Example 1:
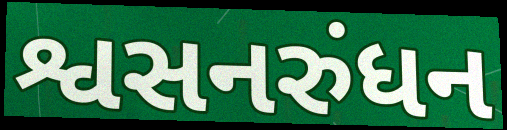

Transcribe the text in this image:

શ્વસનરુંધન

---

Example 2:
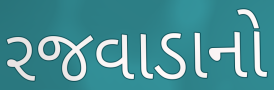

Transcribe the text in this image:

રજવાડાનો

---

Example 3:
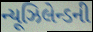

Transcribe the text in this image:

ન્યૂઝિલેન્ડની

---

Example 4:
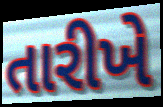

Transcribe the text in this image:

તારીખે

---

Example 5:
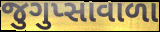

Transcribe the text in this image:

જુગુપ્સાવાળા